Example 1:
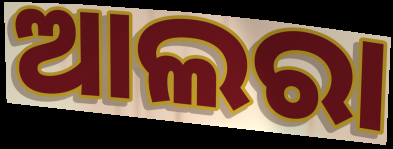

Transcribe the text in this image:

ଆଲରା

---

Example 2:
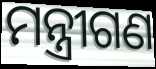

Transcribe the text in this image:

ମନ୍ତ୍ରୀଗଣ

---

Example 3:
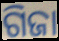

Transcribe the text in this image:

ଗିଜା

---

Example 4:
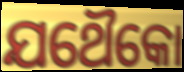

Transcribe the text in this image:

ଯଥୈକୋ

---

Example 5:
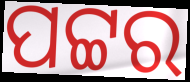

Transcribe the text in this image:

ପଟ୍ଟର